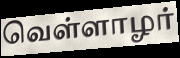
வெள்ளாழர்